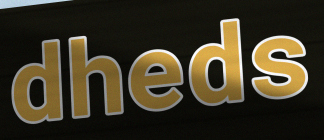
dheds